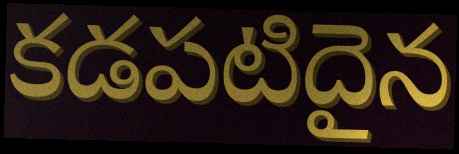
కడపటిదైన